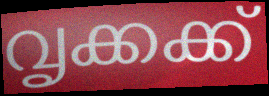
വൃക്കക്ക്